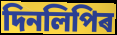
দিনলিপিৰ